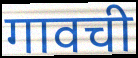
गावची